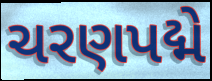
ચરણપદ્મે